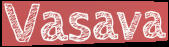
Vasava